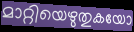
മാറ്റിയെഴുതുകയോ